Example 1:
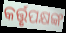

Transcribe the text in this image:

କର୍ତ୍ତୃପକ୍ଷଙ୍କ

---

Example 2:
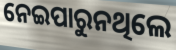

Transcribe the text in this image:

ନେଇପାରୁନଥିଲେ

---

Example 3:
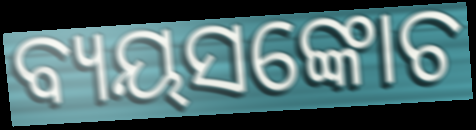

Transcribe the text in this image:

ବ୍ୟୟସଙ୍କୋଚ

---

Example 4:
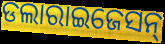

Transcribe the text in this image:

ଡଲାରାଇଜେସନ୍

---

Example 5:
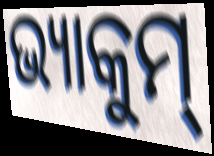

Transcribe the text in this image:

ଭ୍ୟାକୁମ୍